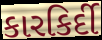
કારકિર્દી